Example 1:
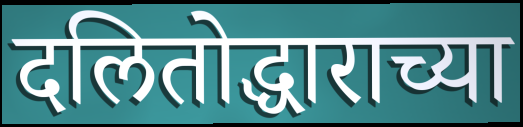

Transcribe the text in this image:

दलितोद्धाराच्या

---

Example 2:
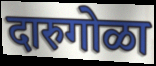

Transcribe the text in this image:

दारुगोळा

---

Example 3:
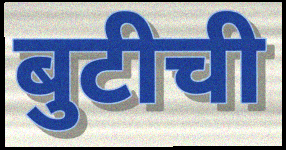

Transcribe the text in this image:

बुटीची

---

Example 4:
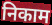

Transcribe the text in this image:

निकाम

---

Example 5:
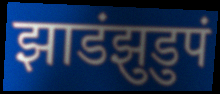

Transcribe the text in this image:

झाडंझुडुपं